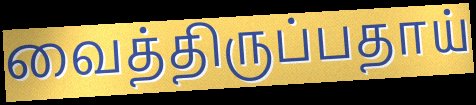
வைத்திருப்பதாய்